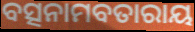
ବତ୍ସନାମବତାରାୟ